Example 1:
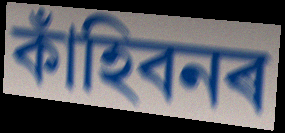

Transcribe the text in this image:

কাঁহিবনৰ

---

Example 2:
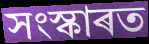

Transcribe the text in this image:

সংস্কাৰত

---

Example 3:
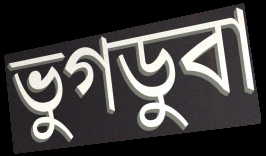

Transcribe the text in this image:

ভুগডুবা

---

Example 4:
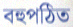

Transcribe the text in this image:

বহুপঠিত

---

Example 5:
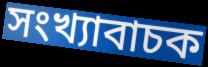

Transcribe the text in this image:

সংখ্যাবাচক